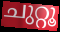
ചുറ്റൂ